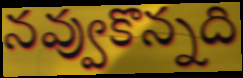
నవ్వుకొన్నది